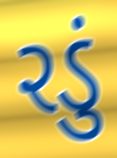
રડું